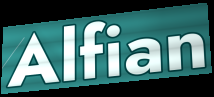
Alfian